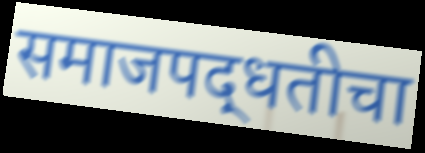
समाजपद्धतीचा